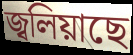
জ্বলিয়াছে